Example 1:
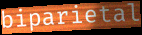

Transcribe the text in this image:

biparietal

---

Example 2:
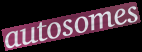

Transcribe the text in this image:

autosomes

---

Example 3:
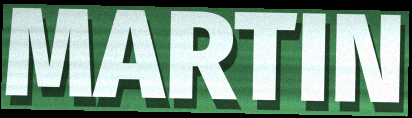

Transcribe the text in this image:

MARTIN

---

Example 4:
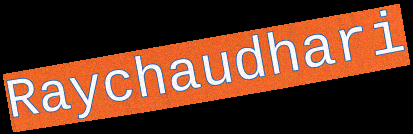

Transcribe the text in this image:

Raychaudhari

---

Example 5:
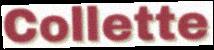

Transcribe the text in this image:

Collette